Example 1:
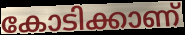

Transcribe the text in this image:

കോടിക്കാണ്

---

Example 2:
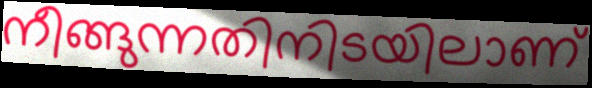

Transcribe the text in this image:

നീങ്ങുന്നതിനിടയിലാണ്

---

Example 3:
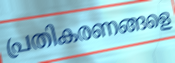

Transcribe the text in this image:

പ്രതികരണങ്ങളെ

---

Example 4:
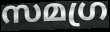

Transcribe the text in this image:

സമഗ്ര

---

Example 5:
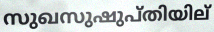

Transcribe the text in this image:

സുഖസുഷുപ്തിയില്